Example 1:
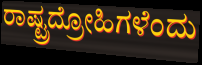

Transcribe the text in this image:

ರಾಷ್ಟ್ರದ್ರೋಹಿಗಳೆಂದು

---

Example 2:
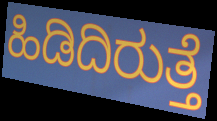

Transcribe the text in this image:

ಹಿಡಿದಿರುತ್ತೆ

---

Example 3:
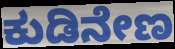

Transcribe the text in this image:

ಕುಡಿನೇಣ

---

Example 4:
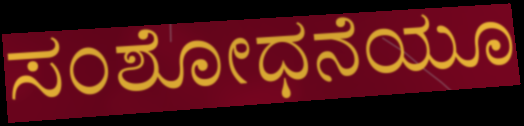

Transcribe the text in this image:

ಸಂಶೋಧನೆಯೂ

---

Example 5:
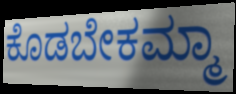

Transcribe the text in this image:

ಕೊಡಬೇಕಮ್ಮಾ